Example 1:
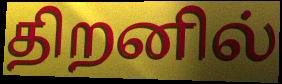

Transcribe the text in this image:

திறனில்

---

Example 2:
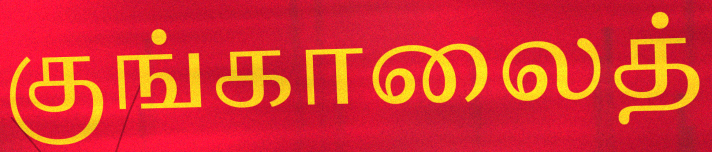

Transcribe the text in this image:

குங்காலைத்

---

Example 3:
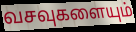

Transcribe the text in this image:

வசவுகளையும்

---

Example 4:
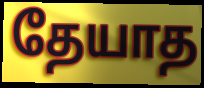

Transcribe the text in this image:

தேயாத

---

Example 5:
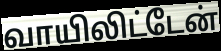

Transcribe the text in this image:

வாயிலிட்டேன்